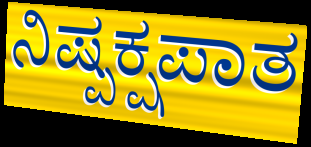
ನಿಷ್ಪಕ್ಷಪಾತ